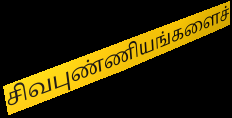
சிவபுண்ணியங்களைச்